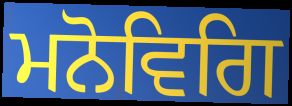
ਮਨੋਵਿਗਿ